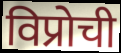
विप्रोची